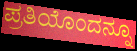
ಪ್ರತಿಯೊಂದನ್ನೂ